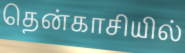
தென்காசியில்